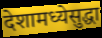
देशामध्येसुद्धा